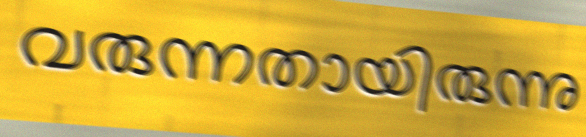
വരുന്നതായിരുന്നു